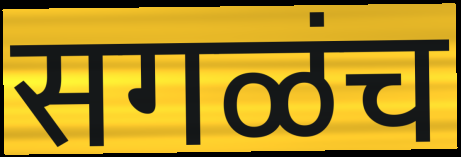
सगळंच